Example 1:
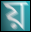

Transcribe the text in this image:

য়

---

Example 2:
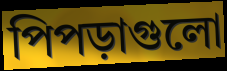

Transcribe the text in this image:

পিপড়াগুলো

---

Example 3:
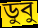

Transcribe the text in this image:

ডুবু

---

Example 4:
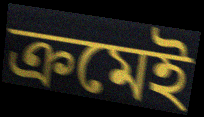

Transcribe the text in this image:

ক্রমেই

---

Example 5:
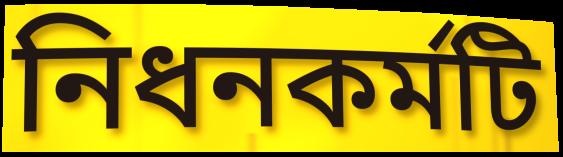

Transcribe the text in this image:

নিধনকর্মটি